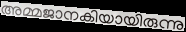
അമ്മജാനകിയായിരുന്നു